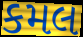
કમલ